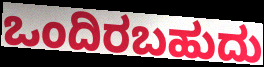
ಒಂದಿರಬಹುದು